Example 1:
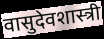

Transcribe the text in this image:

वासुदेवशास्त्री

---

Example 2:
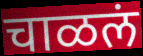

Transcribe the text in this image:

चाळलं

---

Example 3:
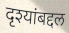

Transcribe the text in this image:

दृश्यांबद्दल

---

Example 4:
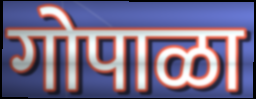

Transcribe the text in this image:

गोपाळा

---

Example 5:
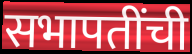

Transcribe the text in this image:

सभापतींची